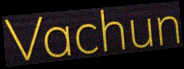
Vachun